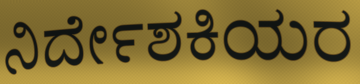
ನಿರ್ದೇಶಕಿಯರ